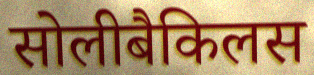
सोलीबैकिलस